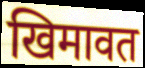
खिमावत